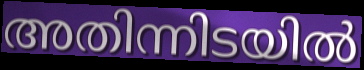
അതിന്നിടയിൽ